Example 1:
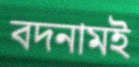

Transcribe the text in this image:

বদনামই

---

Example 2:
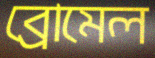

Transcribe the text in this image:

ব্রোমেল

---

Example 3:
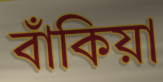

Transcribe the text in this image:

বাঁকিয়া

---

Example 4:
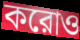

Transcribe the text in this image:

করোও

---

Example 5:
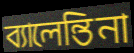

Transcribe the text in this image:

ব্যালেন্তিনা